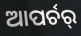
ଆପର୍ଚର୍